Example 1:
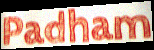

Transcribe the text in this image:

Padham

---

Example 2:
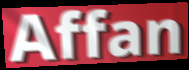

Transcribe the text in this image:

Affan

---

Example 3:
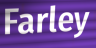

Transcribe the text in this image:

Farley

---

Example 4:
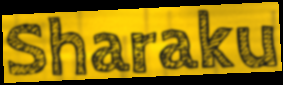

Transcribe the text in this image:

Sharaku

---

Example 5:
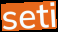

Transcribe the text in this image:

seti